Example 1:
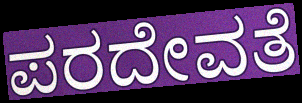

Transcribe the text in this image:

ಪರದೇವತೆ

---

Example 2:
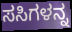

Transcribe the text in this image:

ಸಸಿಗಳನ್ನ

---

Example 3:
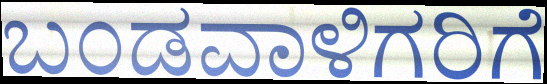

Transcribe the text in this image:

ಬಂಡವಾಳಿಗರಿಗೆ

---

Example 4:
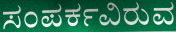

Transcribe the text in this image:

ಸಂಪರ್ಕವಿರುವ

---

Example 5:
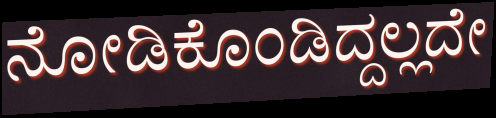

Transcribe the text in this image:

ನೋಡಿಕೊಂಡಿದ್ದಲ್ಲದೇ